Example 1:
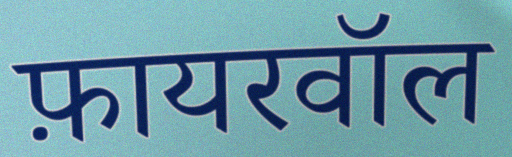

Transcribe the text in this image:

फ़ायरवॉल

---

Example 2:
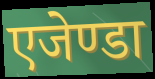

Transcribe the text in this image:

एजेण्डा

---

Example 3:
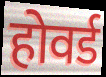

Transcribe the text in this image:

होवर्ड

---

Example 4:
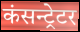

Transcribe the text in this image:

कंसन्ट्रेटर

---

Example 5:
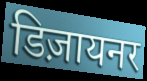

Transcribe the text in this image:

डिज़ायनर